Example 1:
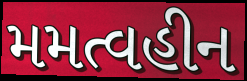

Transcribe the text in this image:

મમત્વહીન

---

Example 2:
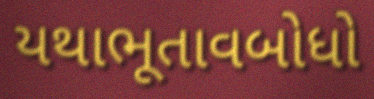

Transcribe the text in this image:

યથાભૂતાવબોધો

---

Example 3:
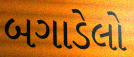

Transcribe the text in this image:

બગાડેલો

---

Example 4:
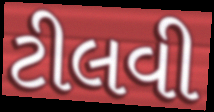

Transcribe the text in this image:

ટીલવી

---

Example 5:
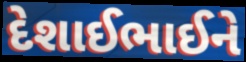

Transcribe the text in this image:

દેશાઈભાઈને